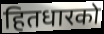
हितधारको